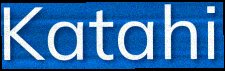
Katahi